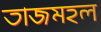
তাজমহল